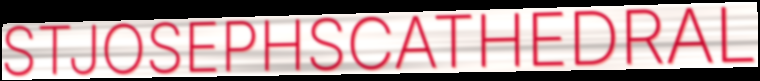
STJOSEPHSCATHEDRAL